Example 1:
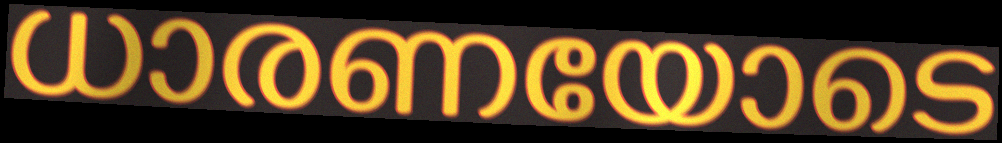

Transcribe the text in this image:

ധാരണയോടെ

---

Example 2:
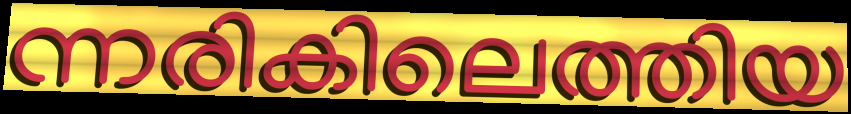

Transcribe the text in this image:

ന്നരികിലെത്തിയ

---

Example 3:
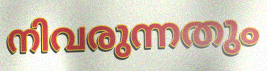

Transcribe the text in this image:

നിവരുന്നതും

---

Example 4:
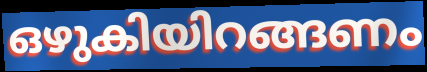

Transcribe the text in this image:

ഒഴുകിയിറങ്ങണം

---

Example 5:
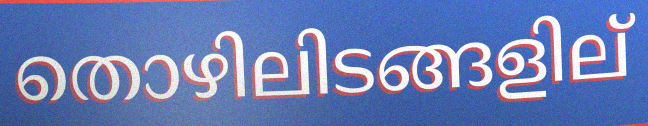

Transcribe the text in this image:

തൊഴിലിടങ്ങളില്